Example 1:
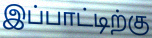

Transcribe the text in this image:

இப்பாட்டிற்கு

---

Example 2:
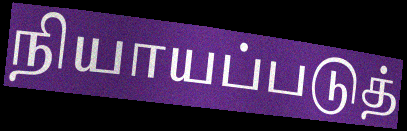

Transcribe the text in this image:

நியாயப்படுத்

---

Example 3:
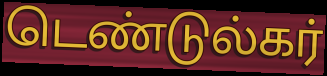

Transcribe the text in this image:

டெண்டுல்கர்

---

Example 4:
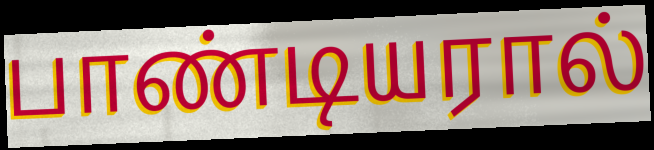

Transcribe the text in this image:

பாண்டியரால்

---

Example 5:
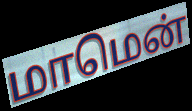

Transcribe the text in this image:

மாமென்